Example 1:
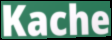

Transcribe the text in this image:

Kache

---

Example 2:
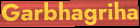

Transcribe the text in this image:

Garbhagriha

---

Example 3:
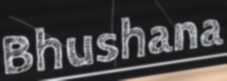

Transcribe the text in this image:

Bhushana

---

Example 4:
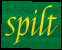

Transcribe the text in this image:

spilt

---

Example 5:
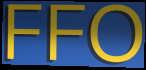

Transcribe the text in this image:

FFO